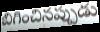
బిగించినప్పుడు